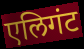
एलिगंट